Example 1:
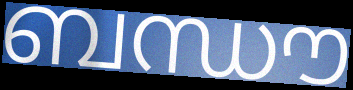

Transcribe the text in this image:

ബന്ധൗ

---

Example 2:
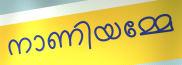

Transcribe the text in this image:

നാണിയമ്മേ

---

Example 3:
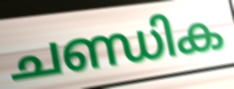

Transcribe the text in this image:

ചണ്ഡിക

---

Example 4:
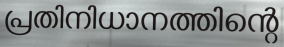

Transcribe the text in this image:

പ്രതിനിധാനത്തിന്റെ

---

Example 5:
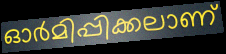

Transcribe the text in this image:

ഓർമിപ്പിക്കലാണ്